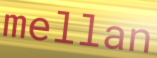
mellan